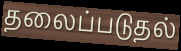
தலைப்படுதல்